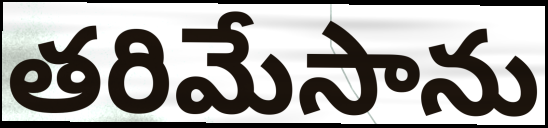
తరిమేసాను